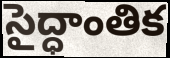
సైద్ధాంతిక